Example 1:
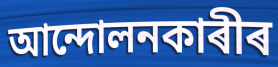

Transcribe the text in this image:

আন্দোলনকাৰীৰ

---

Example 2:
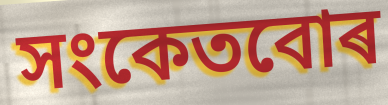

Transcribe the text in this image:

সংকেতবোৰ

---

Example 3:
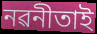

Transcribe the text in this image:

নৱনীতাই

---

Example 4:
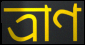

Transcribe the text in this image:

ত্ৰাণ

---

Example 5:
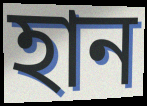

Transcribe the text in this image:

হান